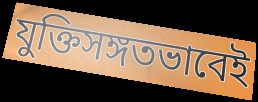
যুক্তিসঙ্গতভাবেই